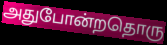
அதுபோன்றதொரு